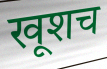
खूशच